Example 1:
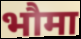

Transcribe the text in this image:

भौमा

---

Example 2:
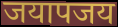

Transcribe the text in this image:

जयापजय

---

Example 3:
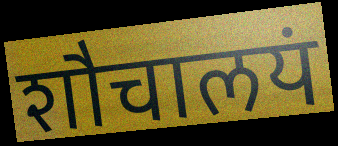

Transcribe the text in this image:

शौचालयं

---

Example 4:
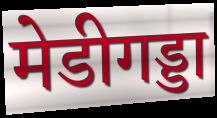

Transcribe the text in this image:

मेडीगड्डा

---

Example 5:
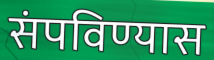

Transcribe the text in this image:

संपविण्यास